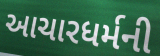
આચારધર્મની